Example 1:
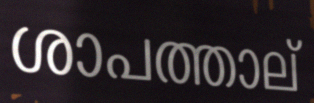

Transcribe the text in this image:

ശാപത്താല്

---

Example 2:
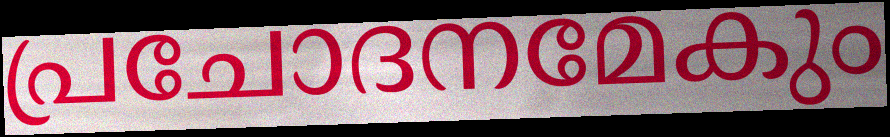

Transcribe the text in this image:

പ്രചോദനമേകും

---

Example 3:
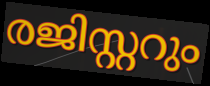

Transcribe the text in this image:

രജിസ്റ്ററും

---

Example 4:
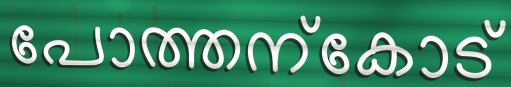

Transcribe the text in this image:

പോത്തന്കോട്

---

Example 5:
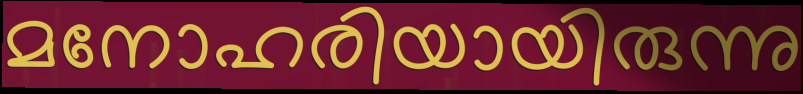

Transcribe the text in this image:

മനോഹരിയായിരുന്നു